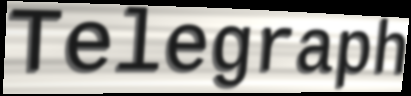
Telegraph